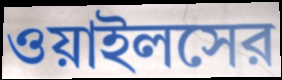
ওয়াইলসের